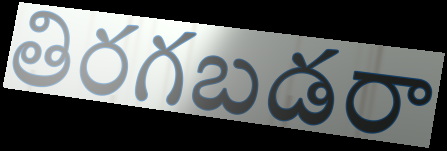
తిరగబడరా